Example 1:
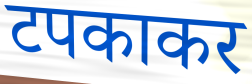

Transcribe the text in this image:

टपकाकर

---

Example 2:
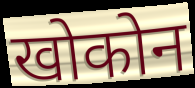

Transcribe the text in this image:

खोकोन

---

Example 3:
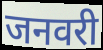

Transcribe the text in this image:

जनवरी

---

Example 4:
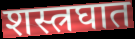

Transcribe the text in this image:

शस्त्रघात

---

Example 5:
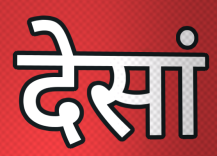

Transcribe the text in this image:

देसां